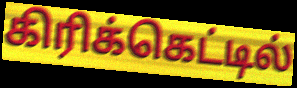
கிரிக்கெட்டில்